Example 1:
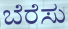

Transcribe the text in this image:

ಬೆರೆಸು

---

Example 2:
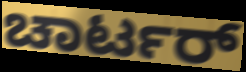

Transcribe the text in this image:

ಚಾರ್ಟರ್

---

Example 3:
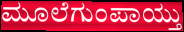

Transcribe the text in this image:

ಮೂಲೆಗುಂಪಾಯ್ತು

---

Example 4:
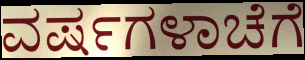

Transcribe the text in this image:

ವರ್ಷಗಳಾಚೆಗೆ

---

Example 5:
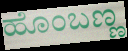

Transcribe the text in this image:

ಹೊಂಬಣ್ಣ